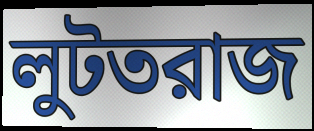
লুটতরাজ